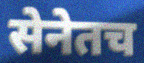
सेनेतच